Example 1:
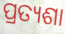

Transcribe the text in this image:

ପ୍ରତ୍ୟଶା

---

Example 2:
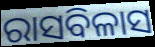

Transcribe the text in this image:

ରାସବିଳାସ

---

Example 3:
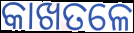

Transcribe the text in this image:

କାଖତଳେ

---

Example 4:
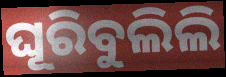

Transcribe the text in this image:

ଘୂରିବୁଲିଲି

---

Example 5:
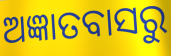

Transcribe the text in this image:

ଅଜ୍ଞାତବାସରୁ